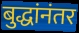
बुद्धांनंतर